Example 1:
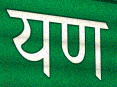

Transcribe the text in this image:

यण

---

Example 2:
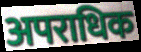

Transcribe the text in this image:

अपराधिक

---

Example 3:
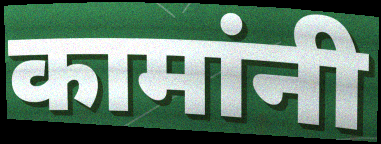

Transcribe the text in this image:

कामांनी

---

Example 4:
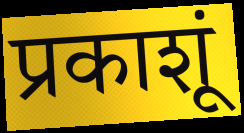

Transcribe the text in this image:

प्रकाशूं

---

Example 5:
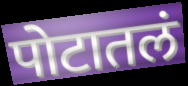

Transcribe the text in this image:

पोटातलं